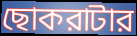
ছোকরাটার